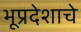
भूप्रदेशाचे